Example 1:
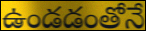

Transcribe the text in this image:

ఉండడంతోనే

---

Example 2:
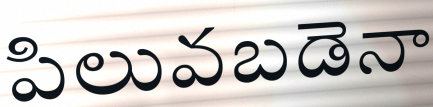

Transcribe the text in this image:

పిలువబడెనా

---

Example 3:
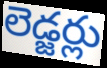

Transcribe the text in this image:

లెడ్జర్లు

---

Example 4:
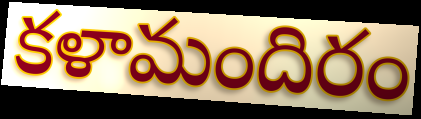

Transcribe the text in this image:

కళామందిరం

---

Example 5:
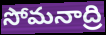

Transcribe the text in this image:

సోమనాద్రి